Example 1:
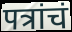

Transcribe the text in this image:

पत्रांचं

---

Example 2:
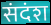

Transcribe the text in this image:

संदंश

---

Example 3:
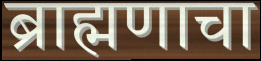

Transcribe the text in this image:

ब्राह्मणाचा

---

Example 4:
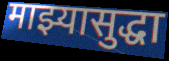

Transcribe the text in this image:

माझ्यासुद्धा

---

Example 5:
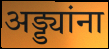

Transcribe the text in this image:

अड्ड्यांना